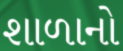
શાળાનો